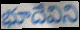
భూదేవిని